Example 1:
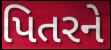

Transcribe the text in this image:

પિતરને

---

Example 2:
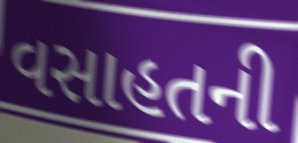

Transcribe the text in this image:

વસાહતની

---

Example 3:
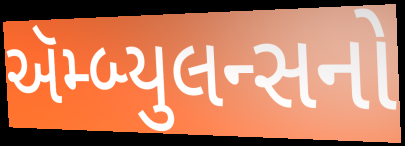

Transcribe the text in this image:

ઍમ્બ્યુલન્સનો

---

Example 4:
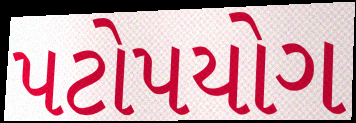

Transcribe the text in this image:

પટોપયોગ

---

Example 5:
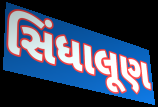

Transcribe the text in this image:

સિંધાલૂણ